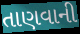
તાણવાની